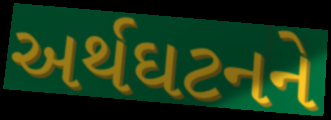
અર્થઘટનને